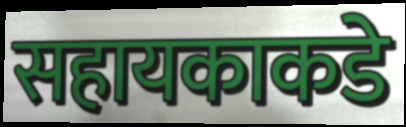
सहायकाकडे